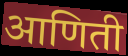
आणिती